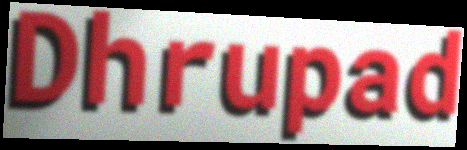
Dhrupad